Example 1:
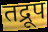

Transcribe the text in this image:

तद्रूप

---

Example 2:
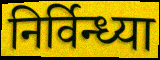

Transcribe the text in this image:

निर्विन्ध्या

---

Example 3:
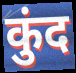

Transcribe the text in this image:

कुंद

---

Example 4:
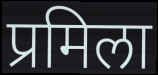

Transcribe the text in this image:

प्रमिला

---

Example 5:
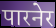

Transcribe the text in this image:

पारनेर